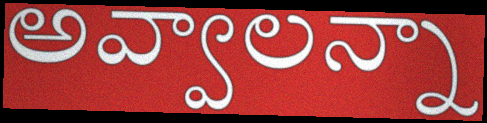
అవ్వాలన్నా